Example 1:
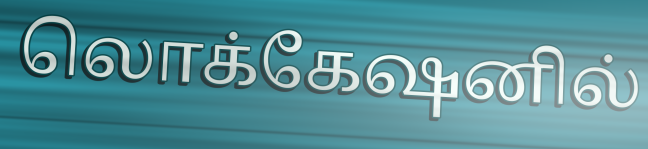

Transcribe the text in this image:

லொக்கேஷனில்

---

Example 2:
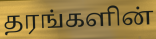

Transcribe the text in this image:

தரங்களின்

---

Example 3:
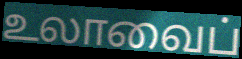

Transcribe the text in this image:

உலாவைப்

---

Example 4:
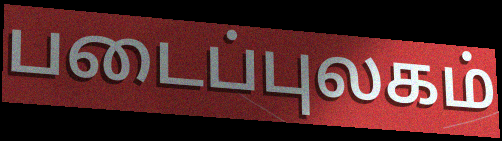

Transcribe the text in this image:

படைப்புலகம்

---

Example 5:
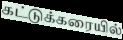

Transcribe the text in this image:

கட்டுக்கரையில்